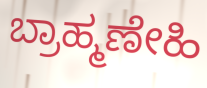
ಬ್ರಾಹ್ಮಣೇಹಿ